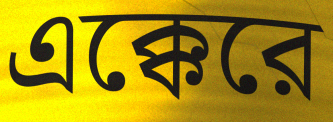
এক্কেরে